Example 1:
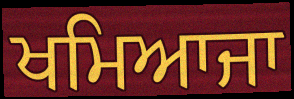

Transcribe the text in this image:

ਖਮਿਆਜਾ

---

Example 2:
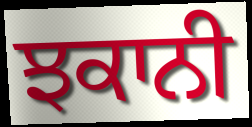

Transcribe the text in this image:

ਝਕਾਨੀ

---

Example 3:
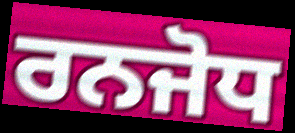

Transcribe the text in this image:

ਰਨਜੋਧ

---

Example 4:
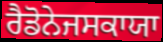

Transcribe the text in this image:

ਰੈਡੋਨੇਜਸਕਾਯਾ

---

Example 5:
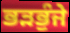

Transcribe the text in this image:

ਭੜਭੁੰਜੇ